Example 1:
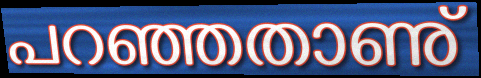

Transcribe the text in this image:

പറഞ്ഞതാണു്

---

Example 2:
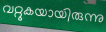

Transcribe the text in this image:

വറ്റുകയായിരുന്നു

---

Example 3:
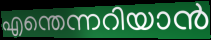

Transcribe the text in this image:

എന്തെന്നറിയാൻ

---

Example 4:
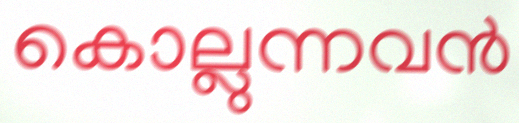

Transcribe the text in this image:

കൊല്ലുന്നവൻ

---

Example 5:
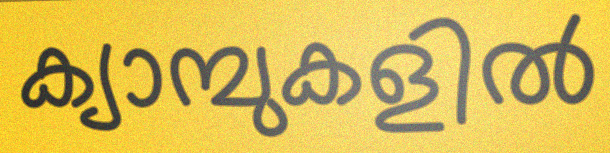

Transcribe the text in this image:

ക്യാമ്പുകളിൽ